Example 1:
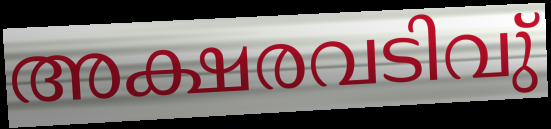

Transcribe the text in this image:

അക്ഷരവടിവു്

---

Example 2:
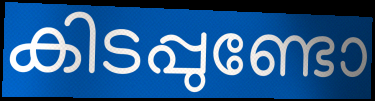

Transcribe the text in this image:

കിടപ്പുണ്ടോ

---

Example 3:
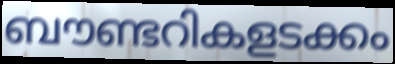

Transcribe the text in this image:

ബൗണ്ടറികളടക്കം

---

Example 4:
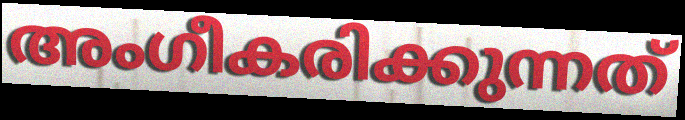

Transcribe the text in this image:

അംഗീകരിക്കുന്നത്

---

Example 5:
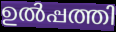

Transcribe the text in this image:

ഉൽപ്പത്തി